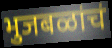
भुजबळांचं